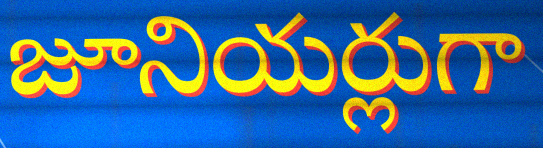
జూనియర్లుగా